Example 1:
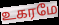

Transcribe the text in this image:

உகரமே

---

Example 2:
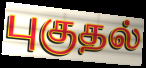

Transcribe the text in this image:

புகுதல்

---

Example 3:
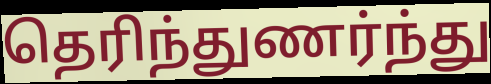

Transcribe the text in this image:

தெரிந்துணர்ந்து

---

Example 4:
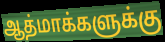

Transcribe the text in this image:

ஆத்மாக்களுக்கு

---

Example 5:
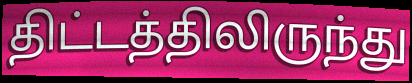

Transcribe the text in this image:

திட்டத்திலிருந்து